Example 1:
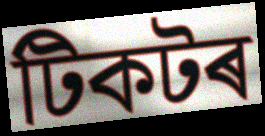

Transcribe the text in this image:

টিকটৰ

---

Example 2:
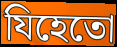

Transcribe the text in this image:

যিহেতো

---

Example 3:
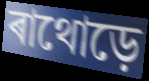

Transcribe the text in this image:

ৰাথোড়ে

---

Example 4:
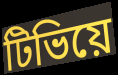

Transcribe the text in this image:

টিভিয়ে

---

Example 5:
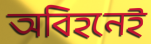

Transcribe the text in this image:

অবিহনেই